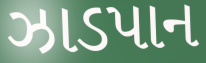
ઝાડપાન